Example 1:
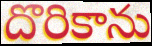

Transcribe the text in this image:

దొరికాను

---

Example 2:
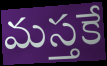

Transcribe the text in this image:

మస్తకే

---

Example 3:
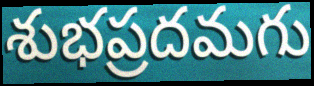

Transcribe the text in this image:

శుభప్రదమగు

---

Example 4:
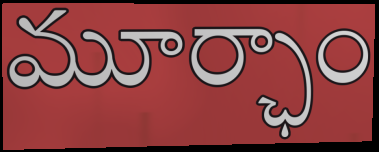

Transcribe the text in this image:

మూర్ఛాం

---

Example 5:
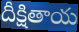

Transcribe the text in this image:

దీక్షితాయ